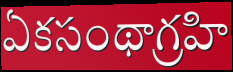
ఏకసంథాగ్రహి